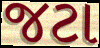
જટા